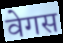
वेगस